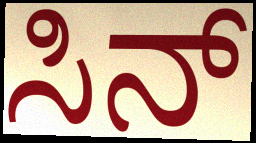
ಸಿನ್